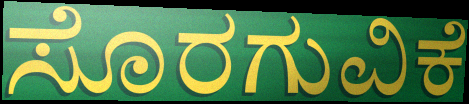
ಸೊರಗುವಿಕೆ